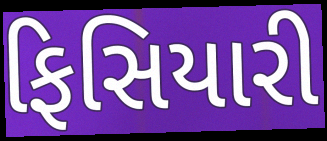
ફિસિયારી